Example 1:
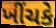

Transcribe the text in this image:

ખીંચકે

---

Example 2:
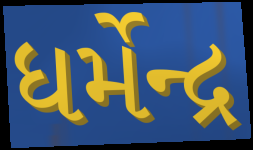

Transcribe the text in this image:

ધર્મેન્દ્ર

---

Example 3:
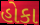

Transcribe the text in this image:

હોકા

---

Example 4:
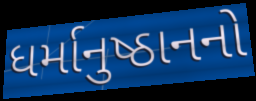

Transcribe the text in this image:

ધર્માનુષ્ઠાનનો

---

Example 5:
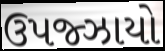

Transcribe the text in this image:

ઉપજ્ઝાયો